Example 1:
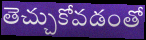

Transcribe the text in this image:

తెచ్చుకోవడంతో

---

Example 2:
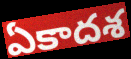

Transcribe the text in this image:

ఏకాదశ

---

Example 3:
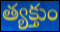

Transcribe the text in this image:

త్యక్తుం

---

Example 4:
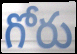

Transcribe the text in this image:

గోరు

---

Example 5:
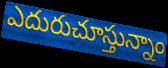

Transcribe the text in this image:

ఎదురుచూస్తున్నాం